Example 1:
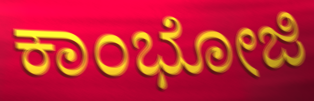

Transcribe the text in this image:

ಕಾಂಭೋಜಿ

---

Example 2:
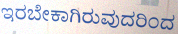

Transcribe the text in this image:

ಇರಬೇಕಾಗಿರುವುದರಿಂದ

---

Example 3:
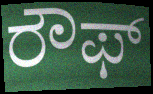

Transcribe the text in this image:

ರೌಫ್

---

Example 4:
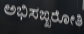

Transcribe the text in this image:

ಅಭಿಸಙ್ಖರೋತಿ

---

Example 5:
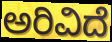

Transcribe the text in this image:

ಅರಿವಿದೆ